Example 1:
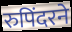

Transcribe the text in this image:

रुपिंदरने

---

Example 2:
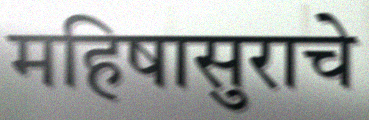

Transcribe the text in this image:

महिषासुराचे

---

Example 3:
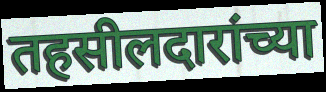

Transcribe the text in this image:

तहसीलदारांच्या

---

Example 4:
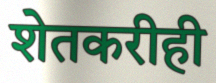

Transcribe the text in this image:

शेतकरीही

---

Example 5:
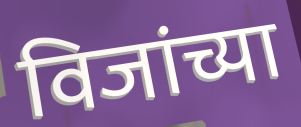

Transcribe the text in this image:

विजांच्या